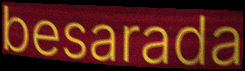
besarada